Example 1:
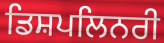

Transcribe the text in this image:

ਡਿਸ਼ਪਲਿਨਰੀ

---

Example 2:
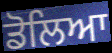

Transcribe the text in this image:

ਡੋਲਿਆ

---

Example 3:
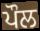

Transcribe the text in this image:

ਪੌਲ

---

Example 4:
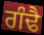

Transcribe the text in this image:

ਗੰਢੈ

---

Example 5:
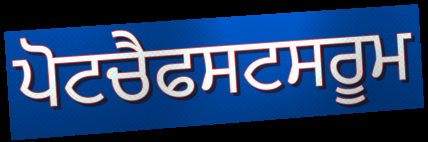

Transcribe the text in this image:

ਪੋਟਚੈਫਸਟਸਰੂਮ